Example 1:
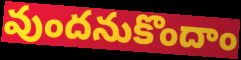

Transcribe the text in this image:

వుందనుకొందాం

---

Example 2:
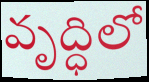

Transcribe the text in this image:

వృద్ధిలో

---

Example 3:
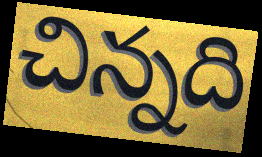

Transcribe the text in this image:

చిన్నది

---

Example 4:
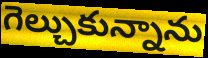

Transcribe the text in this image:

గెల్చుకున్నాను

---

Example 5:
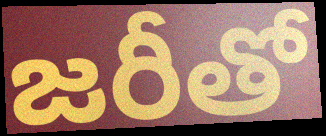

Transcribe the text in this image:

జరీతో